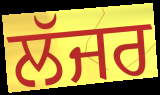
ਲੱਜਰ